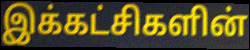
இக்கட்சிகளின்